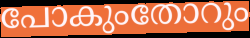
പോകുംതോറും